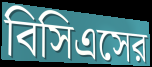
বিসিএসের